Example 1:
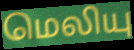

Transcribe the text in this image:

மெலியு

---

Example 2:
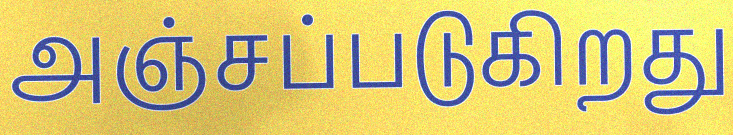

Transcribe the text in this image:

அஞ்சப்படுகிறது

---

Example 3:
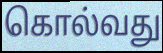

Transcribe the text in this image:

கொல்வது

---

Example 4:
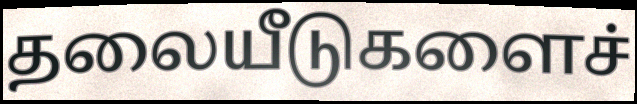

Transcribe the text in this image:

தலையீடுகளைச்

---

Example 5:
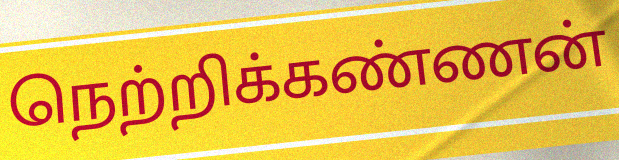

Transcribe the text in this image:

நெற்றிக்கண்ணன்